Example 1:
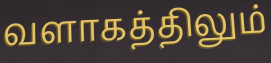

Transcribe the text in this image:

வளாகத்திலும்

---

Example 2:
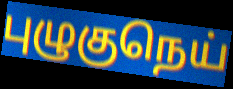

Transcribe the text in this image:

புழுகுநெய்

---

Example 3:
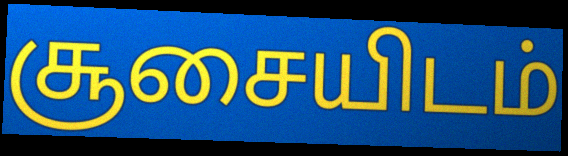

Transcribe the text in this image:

சூசையிடம்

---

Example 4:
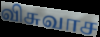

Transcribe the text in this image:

விசுவாச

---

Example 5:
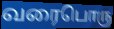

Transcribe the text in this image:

வரைபொரு